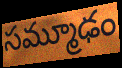
సమ్మూఢం